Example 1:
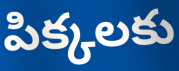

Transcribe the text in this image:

పిక్కలకు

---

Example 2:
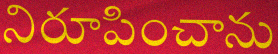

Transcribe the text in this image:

నిరూపించాను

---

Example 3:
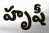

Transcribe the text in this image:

హృషీ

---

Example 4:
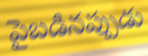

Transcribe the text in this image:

పైబడినప్పుడు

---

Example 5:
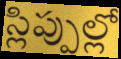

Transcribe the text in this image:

స్లిప్పుల్లో